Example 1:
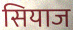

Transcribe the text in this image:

सियाज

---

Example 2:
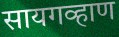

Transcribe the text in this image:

सायगव्हाण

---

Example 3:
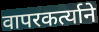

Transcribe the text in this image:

वापरकर्त्याने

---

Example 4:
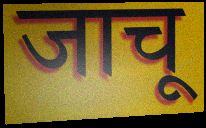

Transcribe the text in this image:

जाचू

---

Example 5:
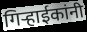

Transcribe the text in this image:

गिऱ्हाईकांनी